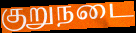
குறுநடை